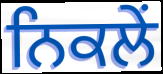
ਨਿਕਲੇਂ